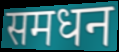
समधन